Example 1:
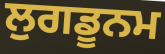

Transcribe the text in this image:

ਲੁਗਡੂਨਮ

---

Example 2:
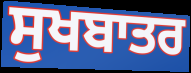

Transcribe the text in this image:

ਸੁਖਬਾਤਰ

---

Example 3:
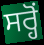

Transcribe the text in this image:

ਸਰ੍ਹੋਂ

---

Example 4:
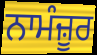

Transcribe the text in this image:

ਨਾਮੰਜ਼ੂਰ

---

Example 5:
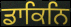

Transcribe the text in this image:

ਡਾਕਿਨਿ